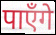
पाऍंगे